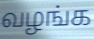
வழங்க